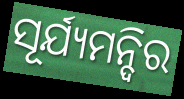
ସୂର୍ଯ୍ୟମନ୍ଦିର